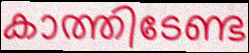
കാത്തിടേണ്ട